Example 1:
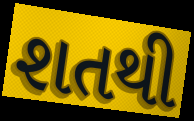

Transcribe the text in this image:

શતથી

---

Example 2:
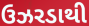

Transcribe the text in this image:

ઉઝરડાથી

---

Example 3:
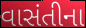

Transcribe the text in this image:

વાસંતીના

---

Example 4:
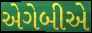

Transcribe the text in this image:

એગેબીએ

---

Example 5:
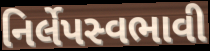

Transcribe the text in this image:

નિર્લેપસ્વભાવી